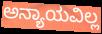
ಅನ್ಯಾಯವಿಲ್ಲ